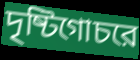
দৃষ্টিগোচরে